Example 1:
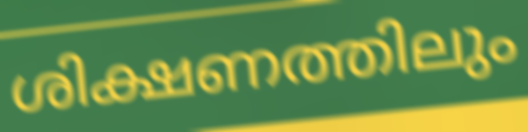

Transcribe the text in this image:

ശിക്ഷണത്തിലും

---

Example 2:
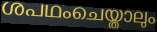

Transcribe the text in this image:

ശപഥംചെയ്താലും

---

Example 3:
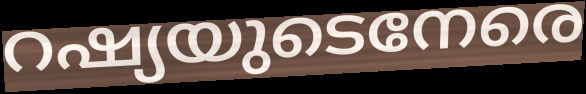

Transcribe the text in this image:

റഷ്യയുടെനേരെ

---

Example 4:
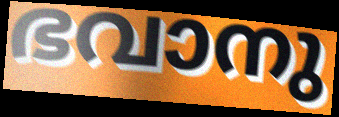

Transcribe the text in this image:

ഭവാനു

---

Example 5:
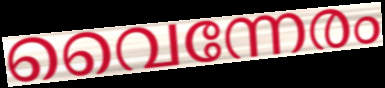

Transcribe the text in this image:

വൈന്നേരം